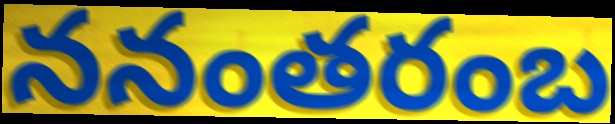
ననంతరంబ